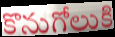
కొనుగోలుకి